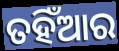
ତହିଁଆର